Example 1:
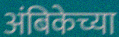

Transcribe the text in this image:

अंबिकेच्या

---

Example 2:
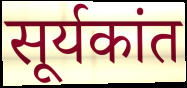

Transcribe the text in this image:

सूर्यकांत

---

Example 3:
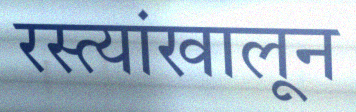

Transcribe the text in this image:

रस्त्यांखालून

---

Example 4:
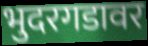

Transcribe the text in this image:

भुदरगडावर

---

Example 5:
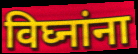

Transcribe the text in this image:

विघ्नांना